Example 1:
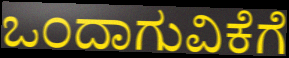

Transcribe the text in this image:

ಒಂದಾಗುವಿಕೆಗೆ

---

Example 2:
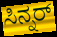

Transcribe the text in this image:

ಸಿನ್ನರ್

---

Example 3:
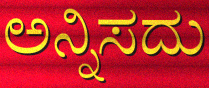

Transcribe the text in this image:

ಅನ್ನಿಸದು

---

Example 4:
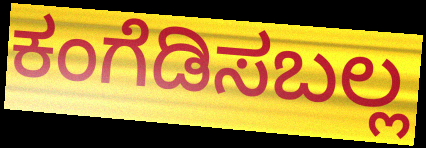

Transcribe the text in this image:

ಕಂಗೆಡಿಸಬಲ್ಲ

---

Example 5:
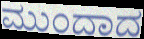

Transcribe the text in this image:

ಮುಂದಾದ